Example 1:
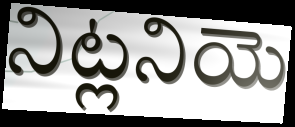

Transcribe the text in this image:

నిట్లనియె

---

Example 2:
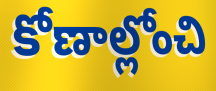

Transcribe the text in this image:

కోణాల్లోంచి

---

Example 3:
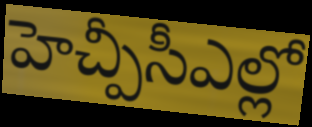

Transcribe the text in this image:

హెచ్పీసీఎల్లో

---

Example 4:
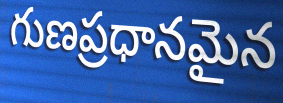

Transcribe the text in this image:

గుణప్రధానమైన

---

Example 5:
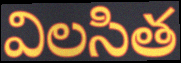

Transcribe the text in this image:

విలసిత